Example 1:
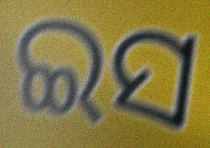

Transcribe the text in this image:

ଇସ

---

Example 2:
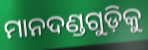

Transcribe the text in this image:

ମାନଦଣ୍ଡଗୁଡ଼ିକୁ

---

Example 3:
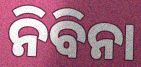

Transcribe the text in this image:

ନିବିନା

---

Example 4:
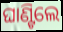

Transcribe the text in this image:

ଘାଣ୍ଟିଲେ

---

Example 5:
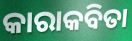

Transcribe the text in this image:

କାରାକବିତା